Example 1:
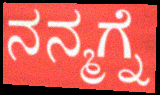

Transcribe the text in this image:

ನನ್ಮಗ್ನೆ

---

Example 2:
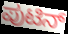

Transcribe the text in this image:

ಪುಟಿನ್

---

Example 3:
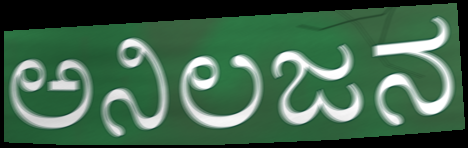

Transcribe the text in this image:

ಅನಿಲಜನ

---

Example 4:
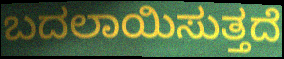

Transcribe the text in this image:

ಬದಲಾಯಿಸುತ್ತದೆ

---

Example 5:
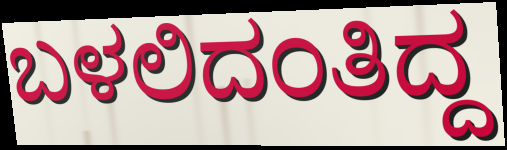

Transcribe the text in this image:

ಬಳಲಿದಂತಿದ್ದ